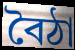
বৈঠা